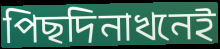
পিছদিনাখনেই